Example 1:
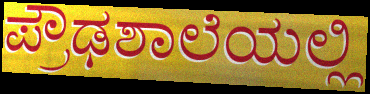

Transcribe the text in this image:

ಪ್ರೌಢಶಾಲೆಯಲ್ಲಿ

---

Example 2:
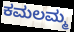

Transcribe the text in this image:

ಕಮಲಮ್ಮ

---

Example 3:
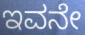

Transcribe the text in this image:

ಇವನೇ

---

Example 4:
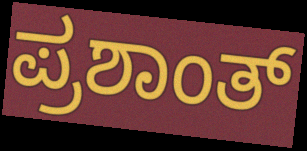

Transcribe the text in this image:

ಪ್ರಶಾಂತ್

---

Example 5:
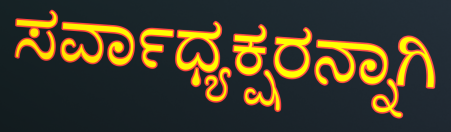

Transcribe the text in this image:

ಸರ್ವಾಧ್ಯಕ್ಷರನ್ನಾಗಿ